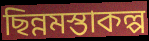
ছিন্নমস্তাকল্প